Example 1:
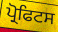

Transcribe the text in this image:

ਪ੍ਰੋਫਿਟਸ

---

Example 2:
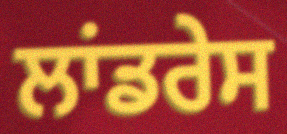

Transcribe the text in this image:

ਲਾਂਡਰੇਸ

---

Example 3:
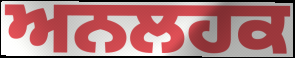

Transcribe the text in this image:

ਅਨਲਹਕ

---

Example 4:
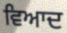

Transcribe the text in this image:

ਵਿਆਦ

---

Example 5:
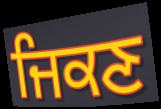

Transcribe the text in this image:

ਜਿਕਣ